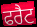
ਫਰੈਟ